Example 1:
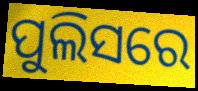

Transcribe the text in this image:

ପୁଲିସରେ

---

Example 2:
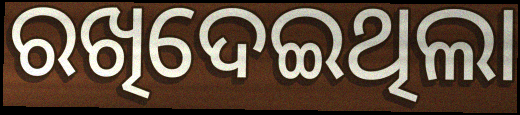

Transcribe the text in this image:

ରଖିଦେଇଥିଲା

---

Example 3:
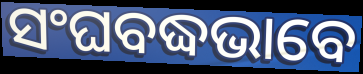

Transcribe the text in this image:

ସଂଘବଦ୍ଧଭାବେ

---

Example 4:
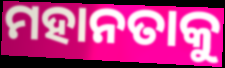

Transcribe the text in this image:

ମହାନତାକୁ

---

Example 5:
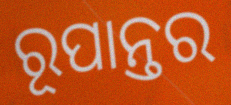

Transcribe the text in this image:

ରୂପାନ୍ତର